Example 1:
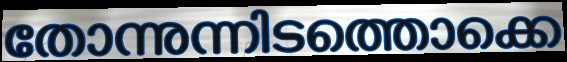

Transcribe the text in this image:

തോന്നുന്നിടത്തൊക്കെ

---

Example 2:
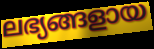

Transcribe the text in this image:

ലഭ്യങ്ങളായ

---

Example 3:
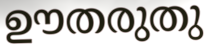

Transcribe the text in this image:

ഊതരുതു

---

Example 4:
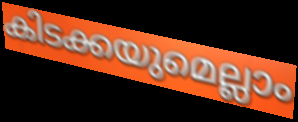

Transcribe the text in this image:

കിടക്കയുമെല്ലാം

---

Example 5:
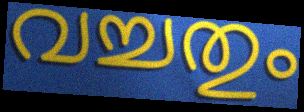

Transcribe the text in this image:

വച്ചതും